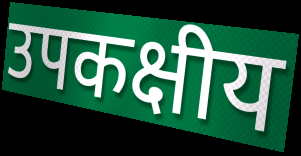
उपकक्षीय